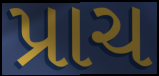
પ્રાચ